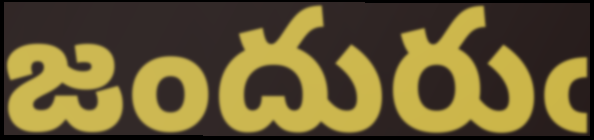
జందురుఁ